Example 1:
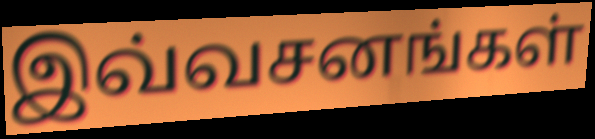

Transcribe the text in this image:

இவ்வசனங்கள்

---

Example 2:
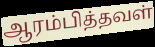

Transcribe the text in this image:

ஆரம்பித்தவள்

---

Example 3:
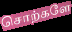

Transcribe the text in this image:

சொற்களே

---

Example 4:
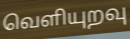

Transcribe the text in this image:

வெளியுறவு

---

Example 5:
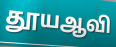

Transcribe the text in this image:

தூயஆவி